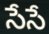
సేసే